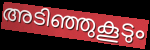
അടിഞ്ഞുകൂടും